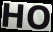
HO